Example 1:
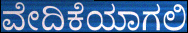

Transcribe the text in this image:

ವೇದಿಕೆಯಾಗಲಿ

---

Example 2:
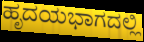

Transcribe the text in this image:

ಹೃದಯಭಾಗದಲ್ಲಿ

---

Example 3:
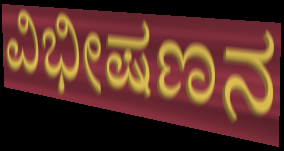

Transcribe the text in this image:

ವಿಭೀಷಣನ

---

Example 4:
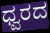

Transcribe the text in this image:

ಧ್ವರದ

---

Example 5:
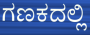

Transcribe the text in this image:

ಗಣಕದಲ್ಲಿ